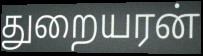
துறையரன்